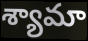
శ్యామా